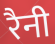
रैनी